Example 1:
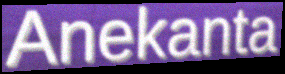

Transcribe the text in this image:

Anekanta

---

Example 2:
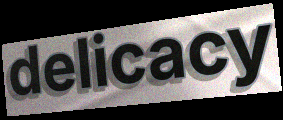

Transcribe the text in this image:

delicacy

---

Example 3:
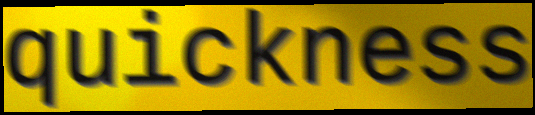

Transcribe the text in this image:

quickness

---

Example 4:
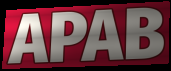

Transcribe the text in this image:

APAB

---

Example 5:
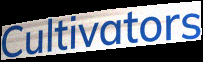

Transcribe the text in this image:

Cultivators